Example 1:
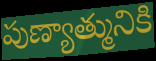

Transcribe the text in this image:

పుణ్యాత్మునికి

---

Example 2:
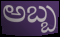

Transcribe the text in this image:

అబ్బ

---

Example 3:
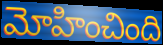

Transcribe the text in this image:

మోహించింది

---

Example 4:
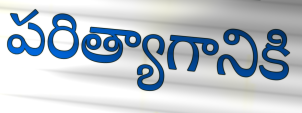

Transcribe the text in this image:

పరిత్యాగానికి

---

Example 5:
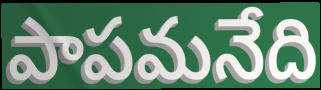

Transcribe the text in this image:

పాపమనేది